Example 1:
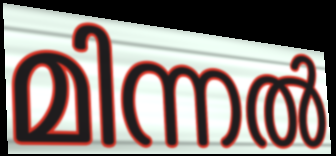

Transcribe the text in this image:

മിന്നൽ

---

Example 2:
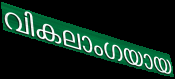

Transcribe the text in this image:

വികലാംഗയായ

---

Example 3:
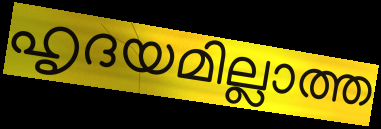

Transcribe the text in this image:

ഹൃദയമില്ലാത്ത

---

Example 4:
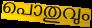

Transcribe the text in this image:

പൊതുവും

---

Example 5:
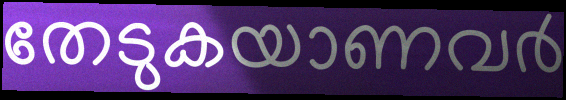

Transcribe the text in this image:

തേടുകയാണവർ